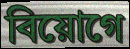
বিয়োগে